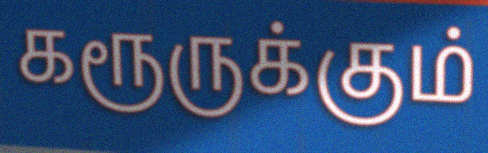
கரூருக்கும்